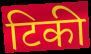
टिकी